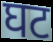
घट